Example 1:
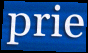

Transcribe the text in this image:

prie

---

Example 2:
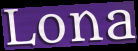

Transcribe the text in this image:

Lona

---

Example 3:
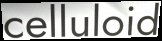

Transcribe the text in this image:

celluloid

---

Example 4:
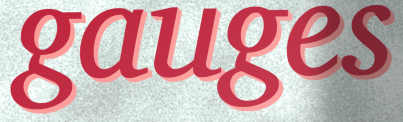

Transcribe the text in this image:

gauges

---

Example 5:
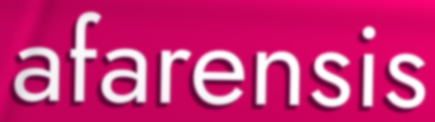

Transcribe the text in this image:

afarensis